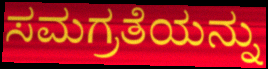
ಸಮಗ್ರತೆಯನ್ನು